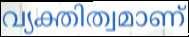
വ്യക്തിത്വമാണ്